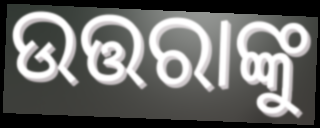
ଉତ୍ତରାଙ୍କୁ